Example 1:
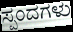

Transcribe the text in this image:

ಸ್ಪಂದಗಳು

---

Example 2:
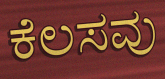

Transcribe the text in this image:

ಕೆಲಸವು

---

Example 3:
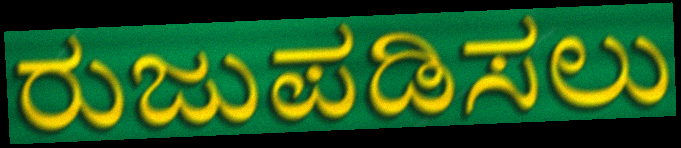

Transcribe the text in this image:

ರುಜುಪಡಿಸಲು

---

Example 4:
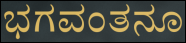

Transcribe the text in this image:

ಭಗವಂತನೂ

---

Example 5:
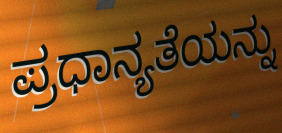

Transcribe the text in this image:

ಪ್ರಧಾನ್ಯತೆಯನ್ನು